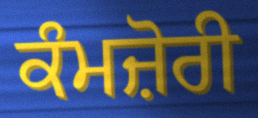
ਕੰਮਜ਼ੋਰੀ